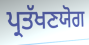
ਪ੍ਰਤੱਖਣਯੋਗ